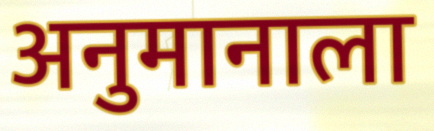
अनुमानाला